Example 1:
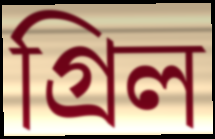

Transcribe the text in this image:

গ্রিল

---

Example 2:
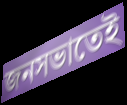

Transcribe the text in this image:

জনসভাতেই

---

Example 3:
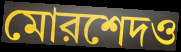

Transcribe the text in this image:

মোরশেদও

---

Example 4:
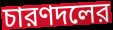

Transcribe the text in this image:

চারণদলের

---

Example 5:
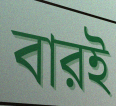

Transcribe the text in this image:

বারই